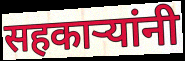
सहकाऱ्यांनी